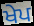
ਖੇਪ